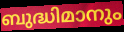
ബുദ്ധിമാനും